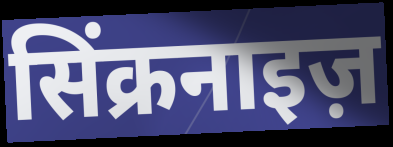
सिंक्रनाइज़